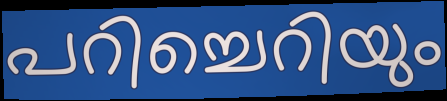
പറിച്ചെറിയും